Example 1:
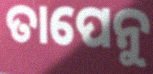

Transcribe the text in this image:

ତାପେନୁ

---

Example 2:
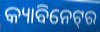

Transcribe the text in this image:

କ୍ୟାବିନେଟ୍‌ର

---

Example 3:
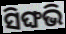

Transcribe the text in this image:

ସିଙ୍ଘଭି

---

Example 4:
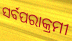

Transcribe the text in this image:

ସର୍ବପରାକ୍ରମୀ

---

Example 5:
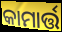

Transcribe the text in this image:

କାମାର୍ତ୍ତ